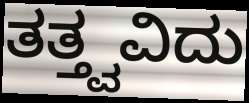
ತತ್ತ್ವವಿದು